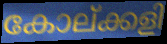
കോല്ക്കളി